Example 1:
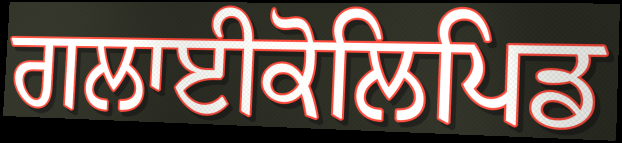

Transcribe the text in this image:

ਗਲਾਈਕੋਲਿਪਿਡ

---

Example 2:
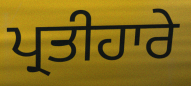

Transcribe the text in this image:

ਪ੍ਰਤੀਹਾਰੇ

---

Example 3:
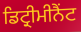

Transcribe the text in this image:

ਡਿਟ੍ਰੀਮੀਨੈਂਟ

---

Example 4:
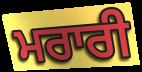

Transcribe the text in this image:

ਮਰਾਰੀ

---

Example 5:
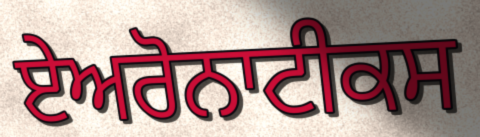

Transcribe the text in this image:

ਏਅਰੋਨਾਟੀਕਸ